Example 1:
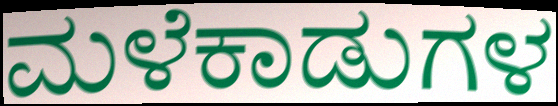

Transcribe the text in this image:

ಮಳೆಕಾಡುಗಳ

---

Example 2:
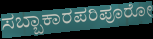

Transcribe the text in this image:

ಸಬ್ಬಾಕಾರಪರಿಪೂರೋ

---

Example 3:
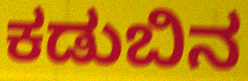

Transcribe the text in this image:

ಕಡುಬಿನ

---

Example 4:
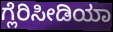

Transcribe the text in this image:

ಗ್ಲೆರಿಸೀಡಿಯಾ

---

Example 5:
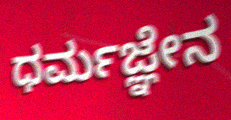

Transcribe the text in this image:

ಧರ್ಮಜ್ಞೇನ